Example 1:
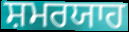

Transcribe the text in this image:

ਸ਼ਮਰਯਾਹ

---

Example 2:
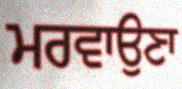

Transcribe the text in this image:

ਮਰਵਾਉਣਾ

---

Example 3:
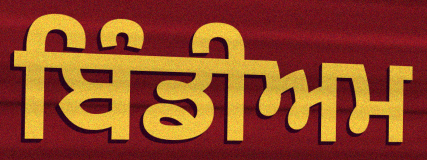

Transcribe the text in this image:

ਬਿੰਡੀਅਮ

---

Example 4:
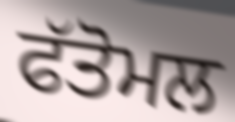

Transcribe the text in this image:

ਫੱਤੋਮਲ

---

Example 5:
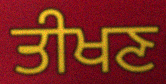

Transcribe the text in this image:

ਤੀਖਣ